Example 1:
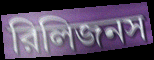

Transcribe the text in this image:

রিলিজনস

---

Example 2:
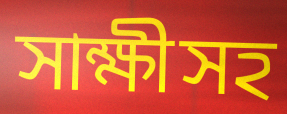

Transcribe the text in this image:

সাক্ষীসহ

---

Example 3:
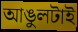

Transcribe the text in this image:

আঙুলটাই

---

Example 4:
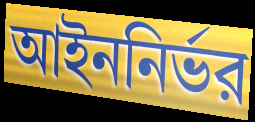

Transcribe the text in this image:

আইননির্ভর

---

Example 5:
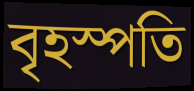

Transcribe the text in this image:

বৃহস্পতি